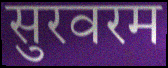
सुरवरम